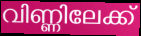
വിണ്ണിലേക്ക്